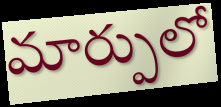
మార్పులో